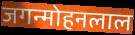
जगन्मोहनलाल